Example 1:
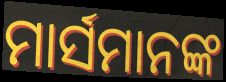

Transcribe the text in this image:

ମାର୍ସମାନଙ୍କ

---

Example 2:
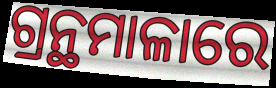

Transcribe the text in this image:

ଗ୍ରନ୍ଥମାଳାରେ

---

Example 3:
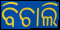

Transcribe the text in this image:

ବିଚାଲି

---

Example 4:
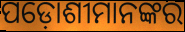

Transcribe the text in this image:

ପଡ଼ୋଶୀମାନଙ୍କର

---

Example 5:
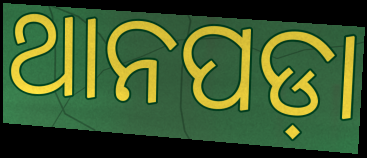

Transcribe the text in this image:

ଥାନପଡ଼ା